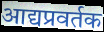
आद्यप्रवर्तक